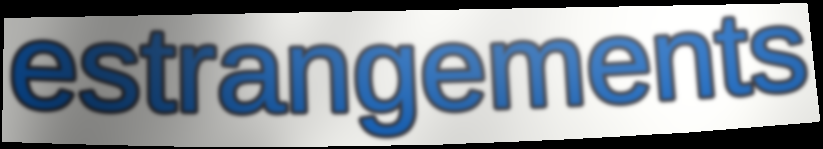
estrangements